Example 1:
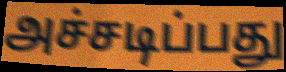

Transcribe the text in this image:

அச்சடிப்பது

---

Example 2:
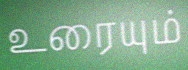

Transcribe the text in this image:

உரையும்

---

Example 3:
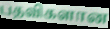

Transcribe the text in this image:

பதவிகளான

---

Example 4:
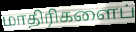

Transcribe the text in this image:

மாதிரிகளைப்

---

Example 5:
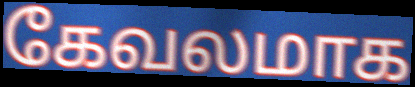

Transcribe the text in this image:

கேவலமாக